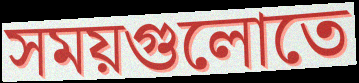
সময়গুলোতে